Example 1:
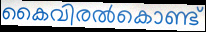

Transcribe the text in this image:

കൈവിരൽകൊണ്ട്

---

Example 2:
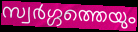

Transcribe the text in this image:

സ്വർഗ്ഗത്തെയും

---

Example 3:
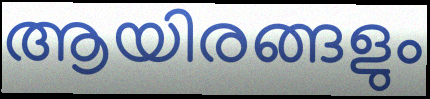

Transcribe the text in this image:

ആയിരങ്ങളും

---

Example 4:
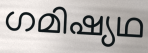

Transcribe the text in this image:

ഗമിഷ്യഥ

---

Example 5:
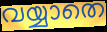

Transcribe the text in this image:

വയ്യാതെ